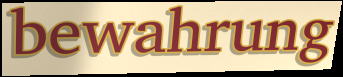
bewahrung